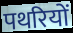
पथरियों